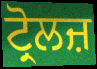
ਟ੍ਰੋਲਜ਼